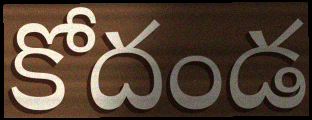
కోదండ